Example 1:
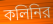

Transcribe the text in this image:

কলিনির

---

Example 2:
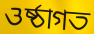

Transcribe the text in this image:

ওষ্ঠাগত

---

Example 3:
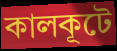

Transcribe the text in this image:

কালকূটে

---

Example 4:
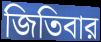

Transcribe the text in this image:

জিতিবার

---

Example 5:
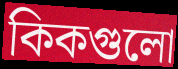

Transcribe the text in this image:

কিকগুলো